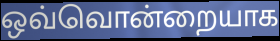
ஒவ்வொன்றையாக